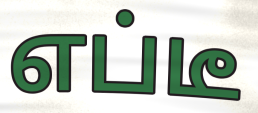
எப்டீ